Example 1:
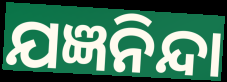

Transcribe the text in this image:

ଯଜ୍ଞନିନ୍ଦା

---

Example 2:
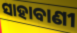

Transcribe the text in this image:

ସାହାବାଣୀ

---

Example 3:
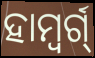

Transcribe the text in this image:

ହାମ୍ବର୍ଗ୍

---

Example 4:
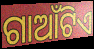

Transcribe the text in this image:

ଗାଆଁଟିଏ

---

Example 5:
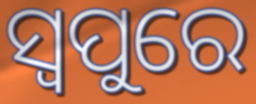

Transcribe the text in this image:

ସ୍ୱପୁରେ